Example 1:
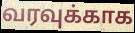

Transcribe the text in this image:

வரவுக்காக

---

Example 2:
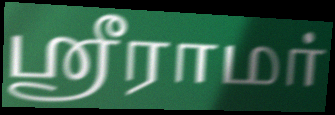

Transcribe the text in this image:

ஶ்ரீராமர்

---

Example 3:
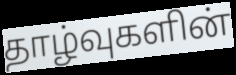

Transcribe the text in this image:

தாழ்வுகளின்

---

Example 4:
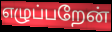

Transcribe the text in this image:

எழுப்பறேன்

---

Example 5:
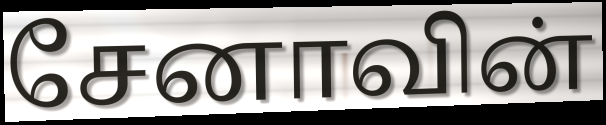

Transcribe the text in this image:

சேனாவின்